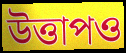
উত্তাপও